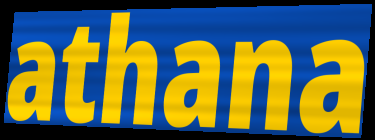
athana